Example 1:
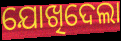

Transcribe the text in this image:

ଯୋଖିଦେଲା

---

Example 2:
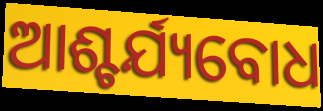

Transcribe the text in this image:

ଆଶ୍ଚର୍ଯ୍ୟବୋଧ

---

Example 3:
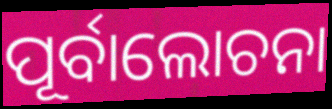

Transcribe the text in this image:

ପୂର୍ବାଲୋଚନା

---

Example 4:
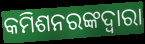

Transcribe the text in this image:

କମିଶନରଙ୍କଦ୍ୱାରା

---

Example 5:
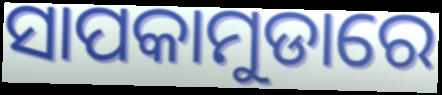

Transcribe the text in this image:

ସାପକାମୁଡାରେ